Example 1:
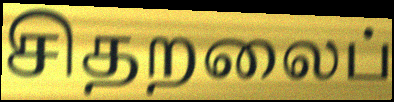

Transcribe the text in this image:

சிதறலைப்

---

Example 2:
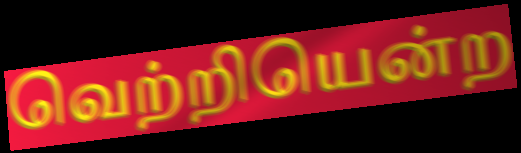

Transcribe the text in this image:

வெற்றியென்ற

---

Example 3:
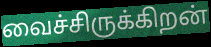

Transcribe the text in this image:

வைச்சிருக்கிறன்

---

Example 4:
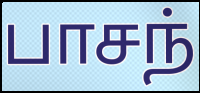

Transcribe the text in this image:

பாசந்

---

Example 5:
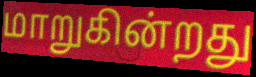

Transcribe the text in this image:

மாறுகின்றது